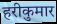
हरीकुमार